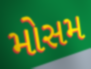
મોસમ